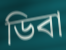
ডিবা